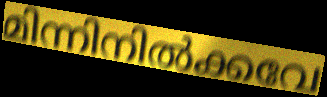
മിന്നിനിൽക്കവേ